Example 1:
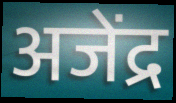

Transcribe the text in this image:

अजेंद्र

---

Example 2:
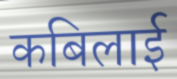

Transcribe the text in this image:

कबिलाई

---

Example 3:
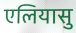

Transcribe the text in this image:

एलियासु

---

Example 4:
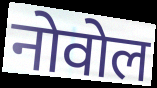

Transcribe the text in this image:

नोवोल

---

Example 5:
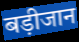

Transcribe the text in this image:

बड़ीजान